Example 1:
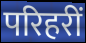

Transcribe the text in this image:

परिहरीं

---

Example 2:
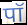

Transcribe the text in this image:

पॉ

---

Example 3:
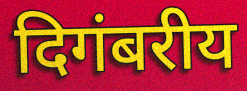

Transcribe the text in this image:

दिगंबरीय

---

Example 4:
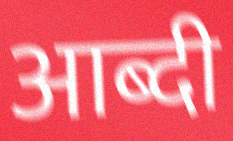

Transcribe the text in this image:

आब्दी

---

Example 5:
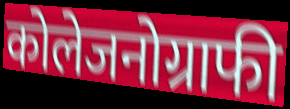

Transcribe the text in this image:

कोलेजनोग्राफी